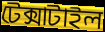
টেক্সাটাইল